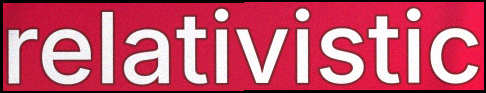
relativistic